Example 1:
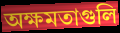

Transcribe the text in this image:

অক্ষমতাগুলি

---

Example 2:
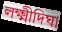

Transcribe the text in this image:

লক্ষ্মীদিঘা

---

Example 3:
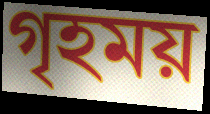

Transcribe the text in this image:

গৃহময়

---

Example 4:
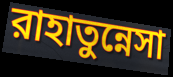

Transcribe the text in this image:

রাহাতুন্নেসা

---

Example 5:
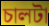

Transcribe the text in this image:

চালটা